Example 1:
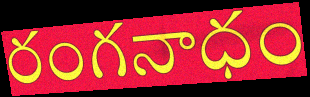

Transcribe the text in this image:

రంగనాధం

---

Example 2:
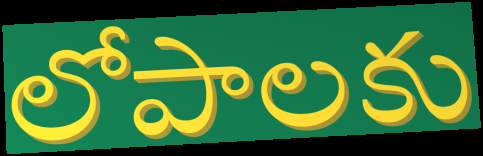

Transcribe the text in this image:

లోపాలకు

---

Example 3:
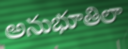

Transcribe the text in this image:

అనుభూతిలా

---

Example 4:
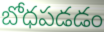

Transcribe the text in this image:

బోధపడడం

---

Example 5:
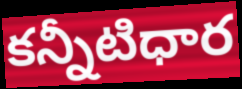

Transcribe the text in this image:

కన్నీటిధార